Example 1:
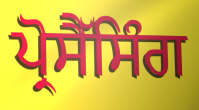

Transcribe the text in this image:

ਪ੍ਰੋਸੈੱਸਿੰਗ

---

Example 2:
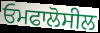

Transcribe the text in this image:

ਓਮਫਾਲੋਸੀਲ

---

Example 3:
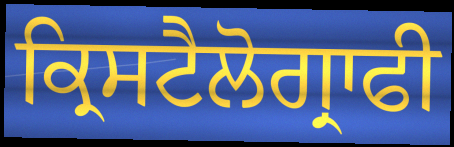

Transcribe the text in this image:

ਕ੍ਰਿਸਟੈਲੋਗ੍ਰਾਫੀ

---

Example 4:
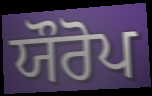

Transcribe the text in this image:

ਯੌਰੋਪ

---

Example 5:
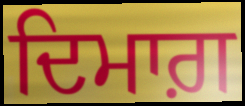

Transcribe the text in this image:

ਦਿਮਾਗ਼